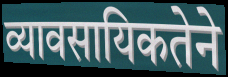
व्यावसायिकतेने